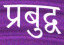
प्रबुद्व